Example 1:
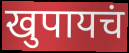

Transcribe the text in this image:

खुपायचं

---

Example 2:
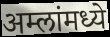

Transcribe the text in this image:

अम्लांमध्ये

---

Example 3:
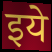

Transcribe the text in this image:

इये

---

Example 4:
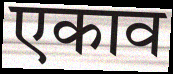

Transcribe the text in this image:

एकाव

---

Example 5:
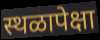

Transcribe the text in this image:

स्थळापेक्षा